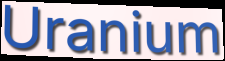
Uranium